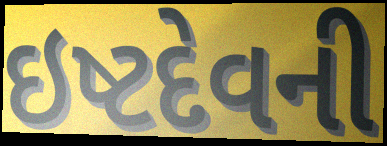
ઇષ્ટદેવની